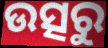
ଉତ୍ସରୁ